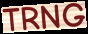
TRNG